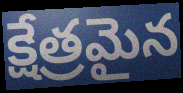
క్షేత్రమైన